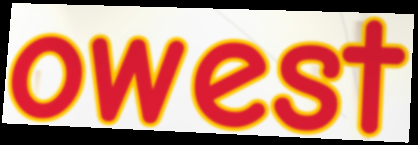
owest